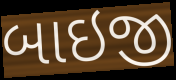
બાઇજી